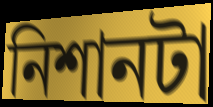
নিশানটা